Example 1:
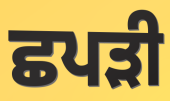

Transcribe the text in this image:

ਛਪੜੀ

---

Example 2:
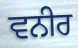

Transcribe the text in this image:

ਵਨੀਰ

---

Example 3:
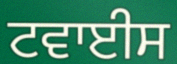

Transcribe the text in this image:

ਟਵਾਈਸ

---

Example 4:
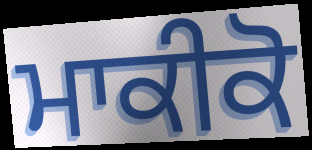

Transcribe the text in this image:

ਮਾਕੀਕੋ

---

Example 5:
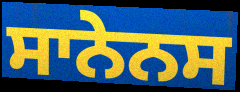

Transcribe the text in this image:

ਸਾਨੇਨਸ